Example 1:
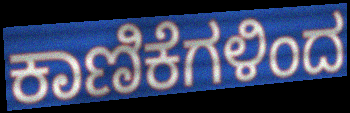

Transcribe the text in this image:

ಕಾಣಿಕೆಗಳಿಂದ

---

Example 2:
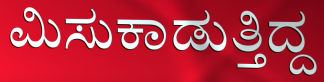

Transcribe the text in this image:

ಮಿಸುಕಾಡುತ್ತಿದ್ದ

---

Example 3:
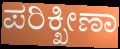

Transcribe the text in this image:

ಪರಿಕ್ಖೀಣಾ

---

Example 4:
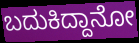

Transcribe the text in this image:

ಬದುಕಿದ್ದಾನೋ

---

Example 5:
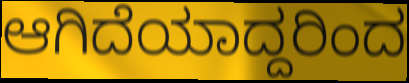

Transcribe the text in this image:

ಆಗಿದೆಯಾದ್ದರಿಂದ